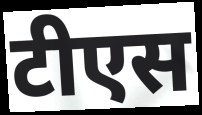
टीएस